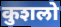
कुशलो